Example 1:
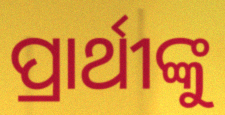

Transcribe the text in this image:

ପ୍ରାର୍ଥୀଙ୍କୁ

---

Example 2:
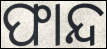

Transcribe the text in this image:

ଫାନ୍ଦ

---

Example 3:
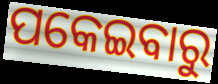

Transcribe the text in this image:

ପକେଇବାରୁ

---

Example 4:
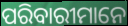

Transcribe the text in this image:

ପରିବାରୀମାନେ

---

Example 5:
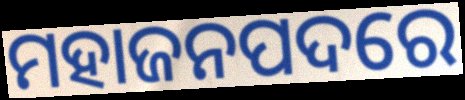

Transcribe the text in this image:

ମହାଜନପଦରେ